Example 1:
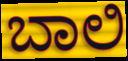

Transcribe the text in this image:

ಬಾಲಿ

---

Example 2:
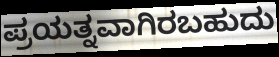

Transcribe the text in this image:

ಪ್ರಯತ್ನವಾಗಿರಬಹುದು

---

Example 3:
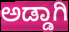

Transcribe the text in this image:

ಅಡ್ಡಾಗಿ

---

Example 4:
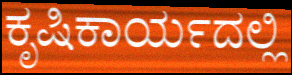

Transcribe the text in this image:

ಕೃಷಿಕಾರ್ಯದಲ್ಲಿ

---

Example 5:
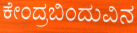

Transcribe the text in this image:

ಕೇಂದ್ರಬಿಂದುವಿನ